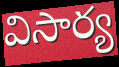
విసార్య